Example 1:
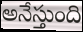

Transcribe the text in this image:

అనేస్తుంది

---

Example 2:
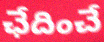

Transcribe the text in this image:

ఛేదించే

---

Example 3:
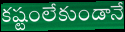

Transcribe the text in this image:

కష్టంలేకుండానే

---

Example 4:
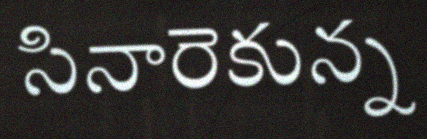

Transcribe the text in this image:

సినారెకున్న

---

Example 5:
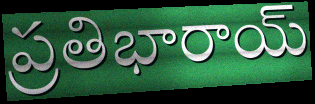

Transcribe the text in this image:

ప్రతిభారాయ్